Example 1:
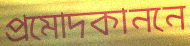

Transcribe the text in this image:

প্রমোদকাননে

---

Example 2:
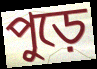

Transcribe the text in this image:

পুড়ে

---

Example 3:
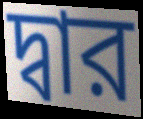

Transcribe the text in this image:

দ্বার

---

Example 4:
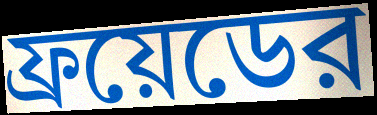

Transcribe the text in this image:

ফ্রয়েডের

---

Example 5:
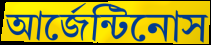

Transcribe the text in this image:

আর্জেন্টিনোস